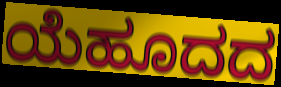
ಯೆಹೂದದ